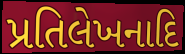
પ્રતિલેખનાદિ